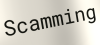
Scamming